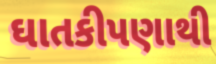
ઘાતકીપણાથી